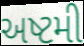
અષ્ટમી